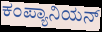
ಕಂಪ್ಯಾನಿಯನ್